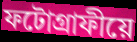
ফটোগ্ৰাফীয়ে